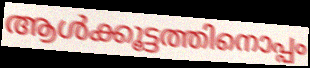
ആൾക്കൂട്ടത്തിനൊപ്പം